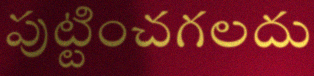
పుట్టించగలదు